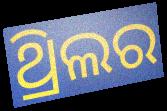
ଥ୍ରିଲର